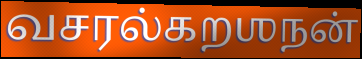
வசரல்கறஶநன்